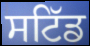
ਸਟਿੱਡ